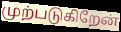
முற்படுகிறேன்